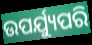
ଉପର୍ଯ୍ୟୁପରି